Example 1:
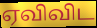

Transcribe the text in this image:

ஏவிவிட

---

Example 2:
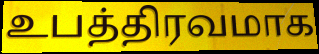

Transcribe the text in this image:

உபத்திரவமாக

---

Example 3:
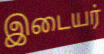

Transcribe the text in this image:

இடையர்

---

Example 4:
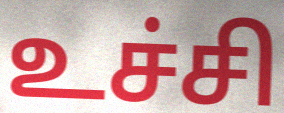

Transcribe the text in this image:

உச்சி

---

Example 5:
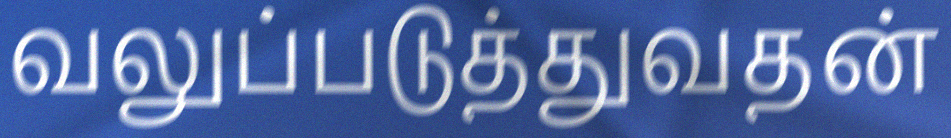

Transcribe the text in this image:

வலுப்படுத்துவதன்